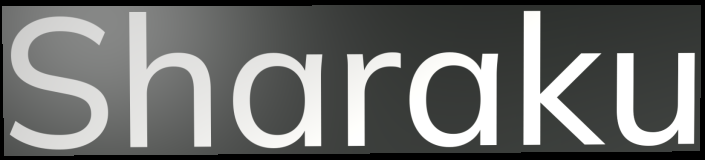
Sharaku